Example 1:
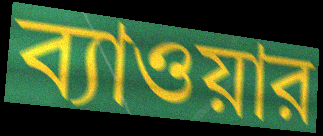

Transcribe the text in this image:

ব্যাওয়ার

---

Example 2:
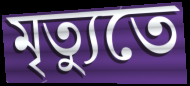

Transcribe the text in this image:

মৃত্যুতে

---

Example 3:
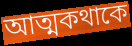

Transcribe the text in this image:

আত্মকথাকে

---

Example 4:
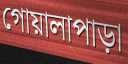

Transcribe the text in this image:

গোয়ালাপাড়া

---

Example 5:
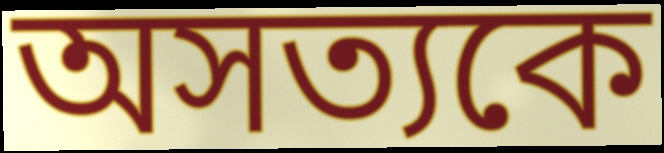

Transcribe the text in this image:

অসত্যকে